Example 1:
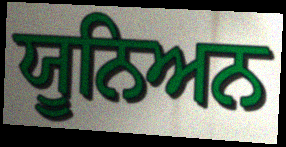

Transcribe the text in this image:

ਯੂਨਿਅਨ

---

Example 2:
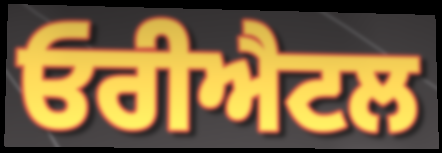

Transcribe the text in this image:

ਓਰੀਐਟਲ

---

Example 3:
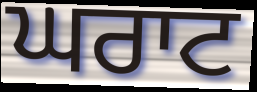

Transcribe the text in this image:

ਘਰਾਟ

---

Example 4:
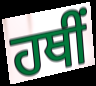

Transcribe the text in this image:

ਹਥੀਂ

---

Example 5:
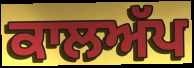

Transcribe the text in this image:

ਕਾਲਅੱਪ